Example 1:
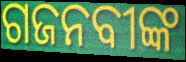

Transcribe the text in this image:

ଗଜନବୀଙ୍କ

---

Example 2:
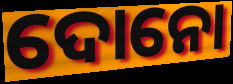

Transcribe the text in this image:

ଦୋନୋ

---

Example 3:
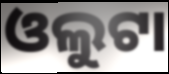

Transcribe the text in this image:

ଓଲୁଟା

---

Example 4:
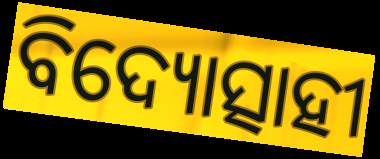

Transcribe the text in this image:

ବିଦ୍ୟୋତ୍ସାହୀ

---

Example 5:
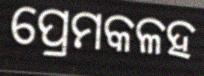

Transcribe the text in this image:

ପ୍ରେମକଳହ